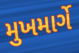
મુખમાર્ગે